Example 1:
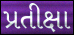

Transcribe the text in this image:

પ્રતીક્ષા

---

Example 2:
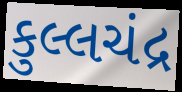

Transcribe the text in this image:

કુલ્લચંદ્ર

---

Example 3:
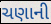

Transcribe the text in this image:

ચણાની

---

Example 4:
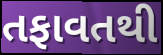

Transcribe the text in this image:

તફાવતથી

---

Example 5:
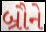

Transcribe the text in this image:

બ્રૌને